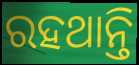
ରହଥାନ୍ତି